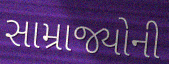
સામ્રાજ્યોની